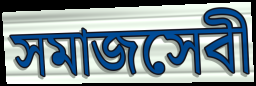
সমাজসেবী